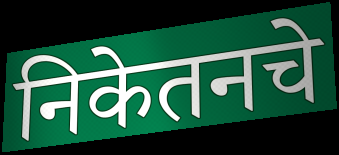
निकेतनचे